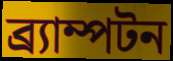
ব্র্যাম্পটন